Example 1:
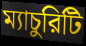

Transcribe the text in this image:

ম্যাচুরিটি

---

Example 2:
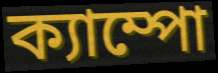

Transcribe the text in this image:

ক্যাম্পো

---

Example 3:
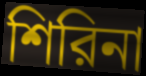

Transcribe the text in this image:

শিরিনা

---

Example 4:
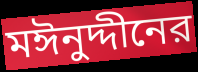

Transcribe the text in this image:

মঈনুদ্দীনের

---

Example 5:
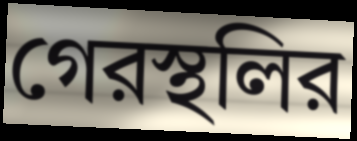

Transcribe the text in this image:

গেরস্থলির